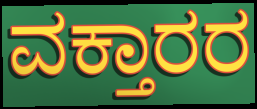
ವಕ್ತಾರರ